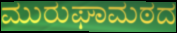
ಮುರುಘಾಮಠದ